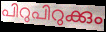
പിറുപിറുക്കും